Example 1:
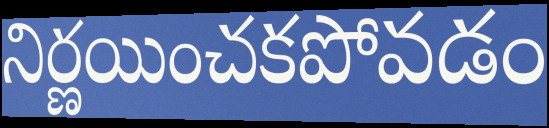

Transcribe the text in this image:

నిర్ణయించకపోవడం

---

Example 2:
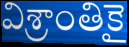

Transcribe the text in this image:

విశ్రాంతికై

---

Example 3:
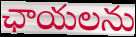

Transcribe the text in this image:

ఛాయలను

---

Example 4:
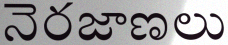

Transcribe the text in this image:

నెరజాణలు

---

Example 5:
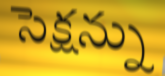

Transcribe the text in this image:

సెక్షన్ను